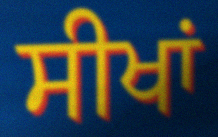
ਸੀਖਾਂ